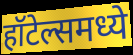
हॉटेल्समध्ये